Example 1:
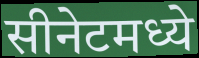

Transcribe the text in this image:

सीनेटमध्ये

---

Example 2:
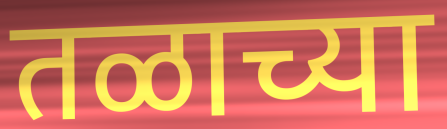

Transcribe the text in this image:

तळाच्या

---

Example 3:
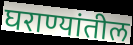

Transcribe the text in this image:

घराण्यांतील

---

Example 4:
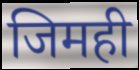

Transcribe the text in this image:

जिमही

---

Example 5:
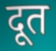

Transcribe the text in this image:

दूत